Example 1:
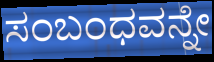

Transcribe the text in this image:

ಸಂಬಂಧವನ್ನೇ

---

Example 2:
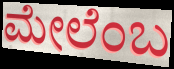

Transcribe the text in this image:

ಮೇಲೆಂಬ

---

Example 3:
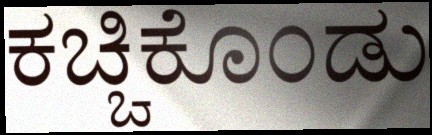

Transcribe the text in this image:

ಕಚ್ಚಿಕೊಂಡು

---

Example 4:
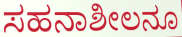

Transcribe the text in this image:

ಸಹನಾಶೀಲನೂ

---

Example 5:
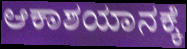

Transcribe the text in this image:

ಆಕಾಶಯಾನಕ್ಕೆ